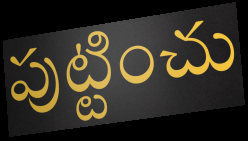
పుట్టించు